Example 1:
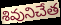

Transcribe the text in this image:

శివునిచేత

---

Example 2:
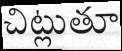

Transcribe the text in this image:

చిట్లుతూ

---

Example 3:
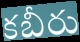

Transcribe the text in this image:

కబీరు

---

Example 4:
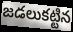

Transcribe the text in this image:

జడలుకట్టిన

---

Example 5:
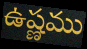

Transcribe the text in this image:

ఉష్ణము